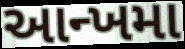
આન્ખમા